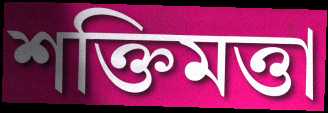
শক্তিমত্তা